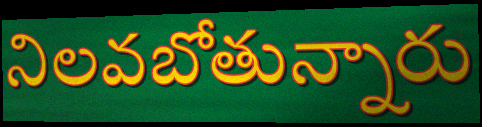
నిలవబోతున్నారు